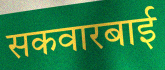
सकवारबाई